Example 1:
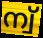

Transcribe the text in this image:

ന്വ്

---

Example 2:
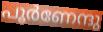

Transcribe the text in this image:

പൂർണേന്ദു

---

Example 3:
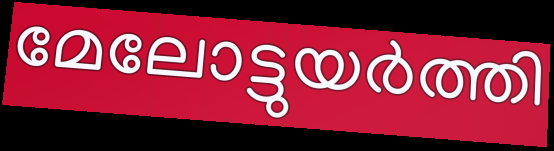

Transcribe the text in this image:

മേലോട്ടുയർത്തി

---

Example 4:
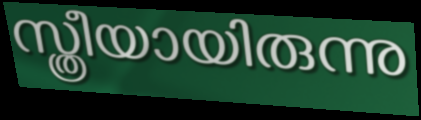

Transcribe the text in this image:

സ്ത്രീയായിരുന്നു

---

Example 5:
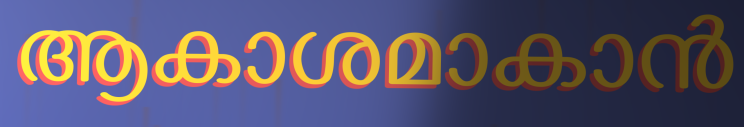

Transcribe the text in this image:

ആകാശമാകാൻ